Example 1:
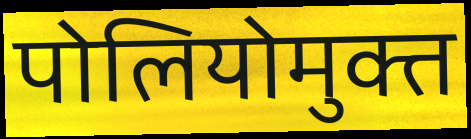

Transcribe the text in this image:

पोलियोमुक्त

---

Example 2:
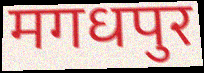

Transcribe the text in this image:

मगधपुर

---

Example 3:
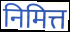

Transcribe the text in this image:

निमित्त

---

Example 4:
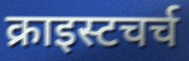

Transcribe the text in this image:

क्राइस्टचर्च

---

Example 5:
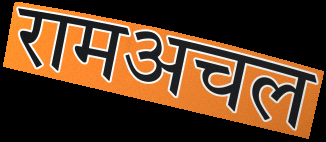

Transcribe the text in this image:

रामअचल